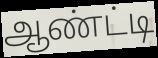
ஆண்ட்டி